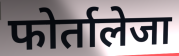
फोर्तालेजा